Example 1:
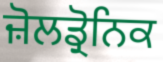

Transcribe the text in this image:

ਜ਼ੋਲਡ੍ਰੋਨਿਕ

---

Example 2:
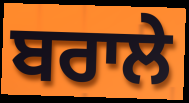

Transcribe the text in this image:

ਬਰਾਲੇ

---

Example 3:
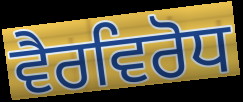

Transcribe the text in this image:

ਵੈਰਵਿਰੋਧ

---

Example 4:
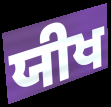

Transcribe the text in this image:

ਯੀਖ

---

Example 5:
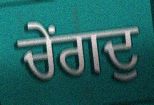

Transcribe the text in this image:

ਚੇਂਗਦੁ